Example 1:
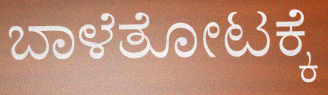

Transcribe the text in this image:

ಬಾಳೆತೋಟಕ್ಕೆ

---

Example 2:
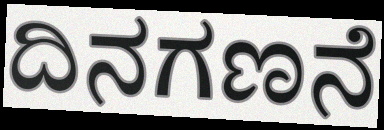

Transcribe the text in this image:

ದಿನಗಣನೆ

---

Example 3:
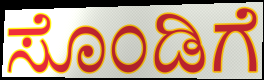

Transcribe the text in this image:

ಸೊಂಡಿಗೆ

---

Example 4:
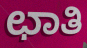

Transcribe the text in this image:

ಛಾತಿ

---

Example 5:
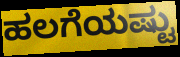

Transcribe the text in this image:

ಹಲಗೆಯಷ್ಟು